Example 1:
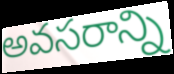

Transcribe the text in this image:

అవసరాన్ని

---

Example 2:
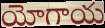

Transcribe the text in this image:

యోగాయ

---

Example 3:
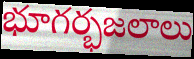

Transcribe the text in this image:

భూగర్భజలాలు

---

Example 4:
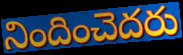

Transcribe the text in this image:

నిందించెదరు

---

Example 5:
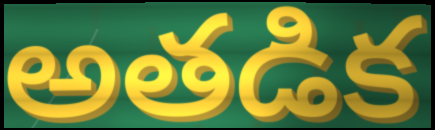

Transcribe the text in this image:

అతడిక